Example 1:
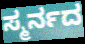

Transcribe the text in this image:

ಸ್ಮರ್ನದ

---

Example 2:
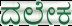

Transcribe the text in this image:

ದಲೇಕ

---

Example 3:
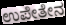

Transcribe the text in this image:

ಉಪೇತೇನ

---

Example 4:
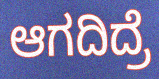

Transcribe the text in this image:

ಆಗದಿದ್ರೆ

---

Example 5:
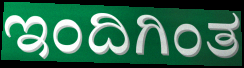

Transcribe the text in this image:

ಇಂದಿಗಿಂತ